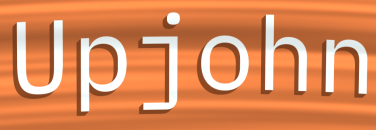
Upjohn